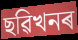
ছৱিখনৰ